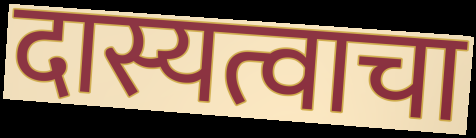
दास्यत्वाचा